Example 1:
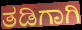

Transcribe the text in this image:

ತಡಿಗಾಗಿ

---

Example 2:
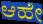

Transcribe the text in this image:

ಆಹೇ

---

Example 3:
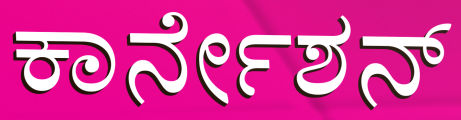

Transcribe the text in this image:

ಕಾರ್ನೇಶನ್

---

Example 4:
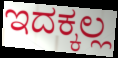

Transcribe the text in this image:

ಇದಕ್ಕಲ್ಲ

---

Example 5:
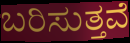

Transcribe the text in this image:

ಬರಿಸುತ್ತವೆ